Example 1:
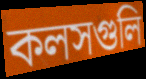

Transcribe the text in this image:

কলসগুলি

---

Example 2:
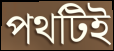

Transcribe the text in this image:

পথটিই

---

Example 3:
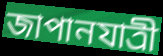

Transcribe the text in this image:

জাপানযাত্রী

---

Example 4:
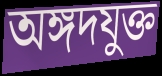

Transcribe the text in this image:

অঙ্গদযুক্ত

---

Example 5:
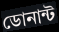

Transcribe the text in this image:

ডোনান্ট